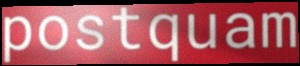
postquam